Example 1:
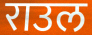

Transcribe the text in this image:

राउल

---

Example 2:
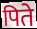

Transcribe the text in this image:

पिते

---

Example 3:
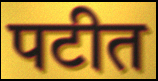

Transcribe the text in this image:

पटीत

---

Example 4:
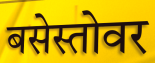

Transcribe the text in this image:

बसेस्तोवर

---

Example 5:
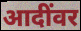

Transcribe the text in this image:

आदींवर